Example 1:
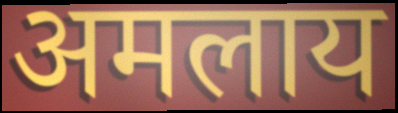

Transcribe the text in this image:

अमलाय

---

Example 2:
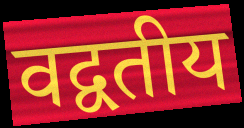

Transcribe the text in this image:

वद्वतीय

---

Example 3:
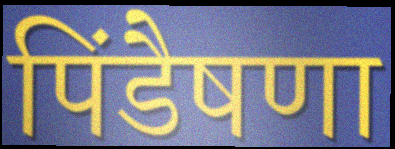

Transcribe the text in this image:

पिंडैषणा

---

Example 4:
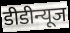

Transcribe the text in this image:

डीडीन्यूज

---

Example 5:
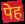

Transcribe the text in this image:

पेह